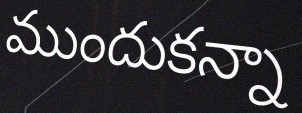
ముందుకన్నా